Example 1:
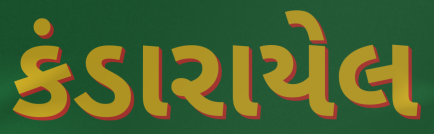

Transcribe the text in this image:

કંડારાયેલ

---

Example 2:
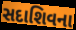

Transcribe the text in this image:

સદાશિવના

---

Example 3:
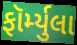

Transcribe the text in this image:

ફૉર્મ્યુલા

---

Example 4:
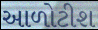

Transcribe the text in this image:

આળોટીશ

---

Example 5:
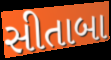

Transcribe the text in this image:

સીતાબા